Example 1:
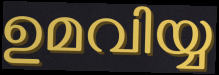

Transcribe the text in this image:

ഉമവിയ്യ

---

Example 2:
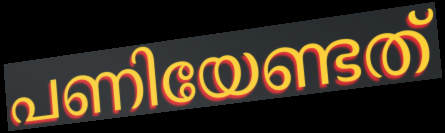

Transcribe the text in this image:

പണിയേണ്ടത്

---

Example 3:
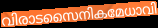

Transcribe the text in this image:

വിരാടസൈനികമേധാവി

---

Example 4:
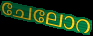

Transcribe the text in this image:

ചേലോറ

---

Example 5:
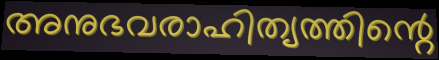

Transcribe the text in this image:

അനുഭവരാഹിത്യത്തിന്റെ